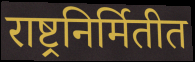
राष्ट्रनिर्मितीत